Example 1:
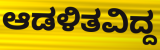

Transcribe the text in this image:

ಆಡಳಿತವಿದ್ದ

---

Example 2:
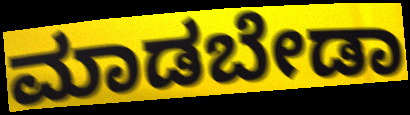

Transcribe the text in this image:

ಮಾಡಬೇಡಾ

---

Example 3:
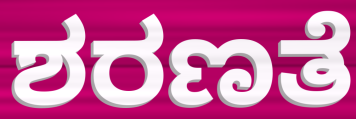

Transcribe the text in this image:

ಶರಣತೆ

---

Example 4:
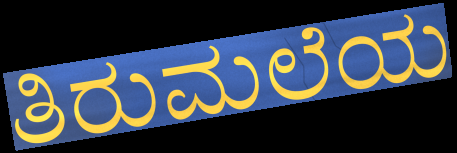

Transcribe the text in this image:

ತಿರುಮಲೆಯ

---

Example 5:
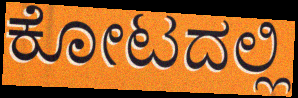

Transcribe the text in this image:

ಕೋಟದಲ್ಲಿ